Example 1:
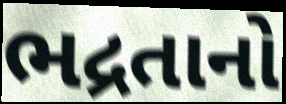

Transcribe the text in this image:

ભદ્રતાનો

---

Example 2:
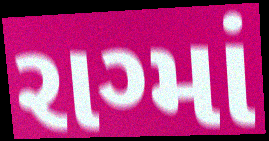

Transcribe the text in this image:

રાગ્માં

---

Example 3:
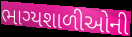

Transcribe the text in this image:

ભાગ્યશાળીઓની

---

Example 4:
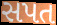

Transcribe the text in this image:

સપત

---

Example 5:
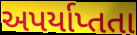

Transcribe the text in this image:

અપર્યાપ્તતા